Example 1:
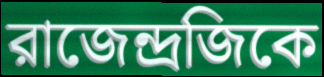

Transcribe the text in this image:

রাজেন্দ্রজিকে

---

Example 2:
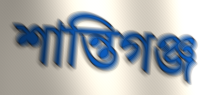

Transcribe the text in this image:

শান্তিগঞ্জ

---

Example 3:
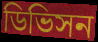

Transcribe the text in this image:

ডিভিসন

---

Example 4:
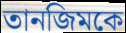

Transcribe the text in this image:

তানজিমকে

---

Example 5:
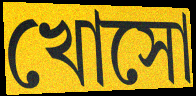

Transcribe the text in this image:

খোসো